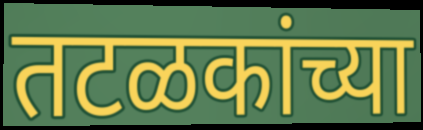
तटळकांच्या